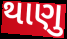
થાણુ